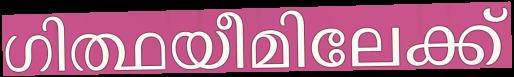
ഗിത്ഥയീമിലേക്ക്